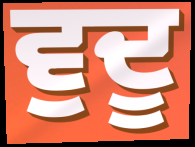
ਵੁਦੂ